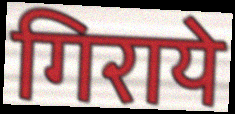
गिराये